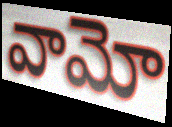
వామో